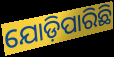
ଯୋଡ଼ିପାରିଛି